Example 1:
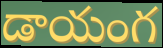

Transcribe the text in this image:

డాయంగ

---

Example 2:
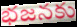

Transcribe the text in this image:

భజనకు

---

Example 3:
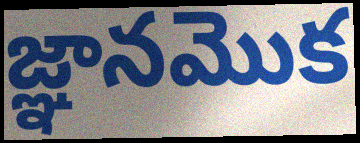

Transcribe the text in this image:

జ్ఞానమొక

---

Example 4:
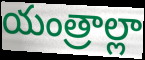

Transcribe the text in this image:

యంత్రాల్లా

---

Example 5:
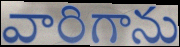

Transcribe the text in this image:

వారిగాను